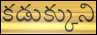
కడుక్కుని